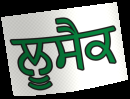
ਲੂਸੈਕ